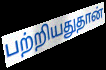
பற்றியதுதான்